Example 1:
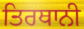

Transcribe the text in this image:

ਤਿਰਥਾਨੀ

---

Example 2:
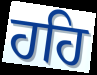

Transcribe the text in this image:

ਹਹਿ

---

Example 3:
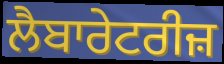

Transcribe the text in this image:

ਲੈਬਾਰੇਟਰੀਜ਼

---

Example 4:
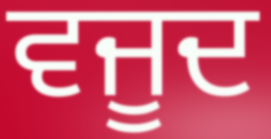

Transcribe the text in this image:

ਵਜੂਦ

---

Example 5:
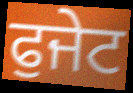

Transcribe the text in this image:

ਫੁਜੇਟ